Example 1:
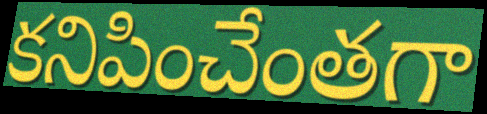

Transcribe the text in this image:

కనిపించేంతగా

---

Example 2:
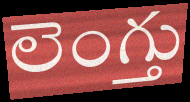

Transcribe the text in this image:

లెంగ్తు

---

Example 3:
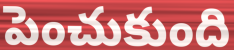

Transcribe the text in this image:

పెంచుకుంది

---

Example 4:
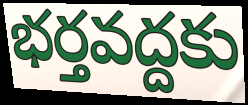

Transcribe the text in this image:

భర్తవద్దకు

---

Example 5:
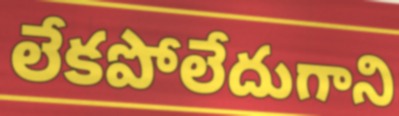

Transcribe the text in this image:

లేకపోలేదుగాని